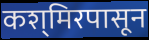
कश्मिरपासून